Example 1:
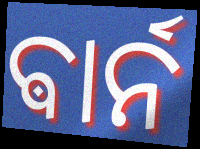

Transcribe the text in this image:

ଵାର୍ନ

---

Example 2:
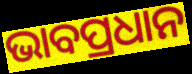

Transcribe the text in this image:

ଭାବପ୍ରଧାନ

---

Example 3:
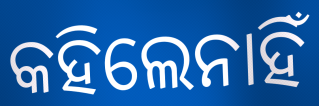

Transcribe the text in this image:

କହିଲେନାହିଁ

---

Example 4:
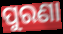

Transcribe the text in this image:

ପୁରଣା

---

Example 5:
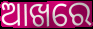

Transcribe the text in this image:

ଆଖରେ